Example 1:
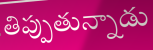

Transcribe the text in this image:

తిప్పుతున్నాడు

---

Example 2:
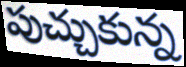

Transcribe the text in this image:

పుచ్చుకున్న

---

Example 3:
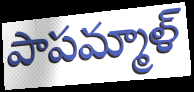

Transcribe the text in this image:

పాపమ్మాళ్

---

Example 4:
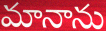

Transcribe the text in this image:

మానాను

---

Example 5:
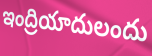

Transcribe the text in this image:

ఇంద్రియాదులందు